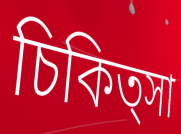
চিকিত্সা